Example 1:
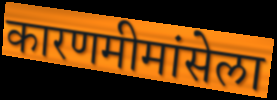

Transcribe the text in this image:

कारणमीमांसेला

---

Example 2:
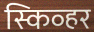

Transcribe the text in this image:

स्किव्हर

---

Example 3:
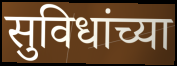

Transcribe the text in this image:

सुविधांच्या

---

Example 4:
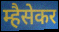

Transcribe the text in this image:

म्हैसेकर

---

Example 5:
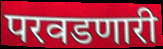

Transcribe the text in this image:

परवडणारी